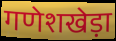
गणेशखेड़ा